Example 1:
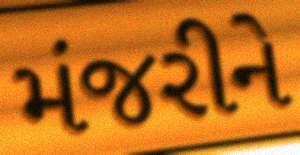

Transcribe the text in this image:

મંજરીને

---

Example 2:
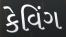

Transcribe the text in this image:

કેવિંગ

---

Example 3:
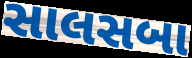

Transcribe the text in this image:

સાલસબા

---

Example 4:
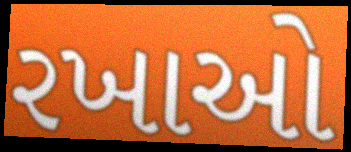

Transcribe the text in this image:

રખાઓ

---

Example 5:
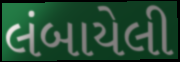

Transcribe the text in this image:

લંબાયેલી